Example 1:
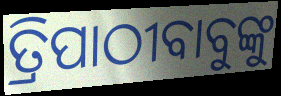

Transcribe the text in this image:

ତ୍ରିପାଠୀବାବୁଙ୍କୁ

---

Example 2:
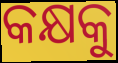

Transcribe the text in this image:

କକ୍ଷକୁ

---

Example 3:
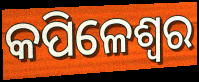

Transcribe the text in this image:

କପିଳେଶ୍ଵର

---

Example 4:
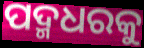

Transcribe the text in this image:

ପଦ୍ମଧରକୁ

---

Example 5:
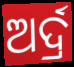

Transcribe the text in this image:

ଅର୍ଦ୍ର